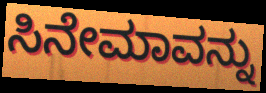
ಸಿನೇಮಾವನ್ನು